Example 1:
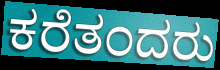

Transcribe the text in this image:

ಕರೆತಂದರು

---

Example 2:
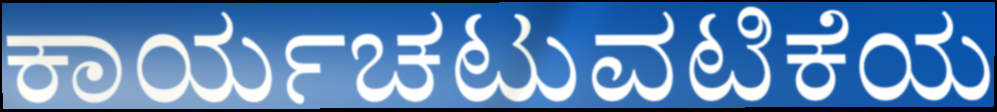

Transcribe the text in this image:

ಕಾರ್ಯಚಟುವಟಿಕೆಯ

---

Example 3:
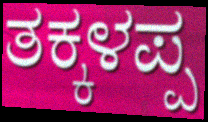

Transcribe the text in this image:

ತಕ್ಕಳಪ್ಪ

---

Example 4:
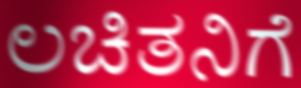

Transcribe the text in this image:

ಲಚಿತನಿಗೆ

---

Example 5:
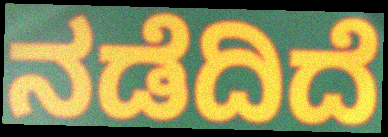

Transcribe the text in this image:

ನಡೆದಿದೆ